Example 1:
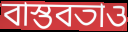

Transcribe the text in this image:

বাস্তবতাও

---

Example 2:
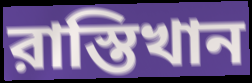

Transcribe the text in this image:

রাস্তিখান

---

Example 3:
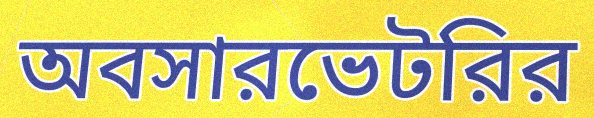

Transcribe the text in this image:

অবসারভেটরির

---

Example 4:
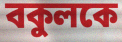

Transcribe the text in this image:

বকুলকে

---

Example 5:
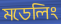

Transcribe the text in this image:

মডেলিং